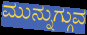
ಮುನ್ನುಗ್ಗುವ